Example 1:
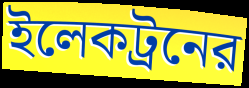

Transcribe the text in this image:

ইলেকট্রনের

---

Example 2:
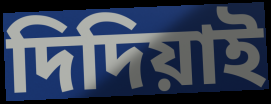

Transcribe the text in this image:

দিদিয়াই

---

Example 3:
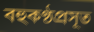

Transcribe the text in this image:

বহুকণ্ঠপ্রসূত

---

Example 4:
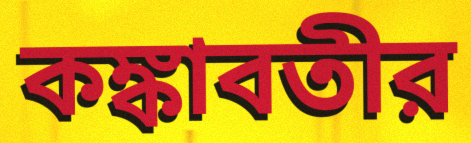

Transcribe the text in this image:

কঙ্কাবতীর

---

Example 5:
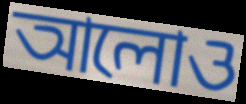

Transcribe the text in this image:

আলোও